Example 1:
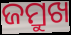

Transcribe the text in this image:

ଜମ୍ରୁଖ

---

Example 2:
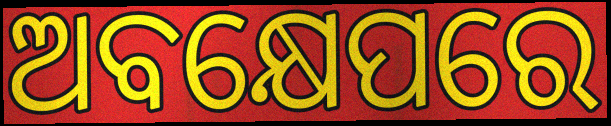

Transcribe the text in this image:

ଅବକ୍ଷେପରେ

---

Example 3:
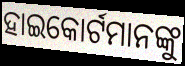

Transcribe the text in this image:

ହାଇକୋର୍ଟମାନଙ୍କୁ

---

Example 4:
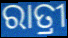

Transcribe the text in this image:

ରାତ୍ରୀ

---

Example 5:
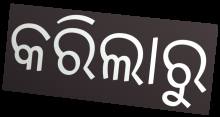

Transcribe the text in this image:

କରିଲାରୁ